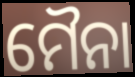
ମୈନା